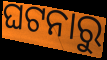
ଘଟନାରୁ